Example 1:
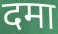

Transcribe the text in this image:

दमा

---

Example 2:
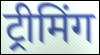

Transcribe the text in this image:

ट्रीमिंग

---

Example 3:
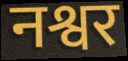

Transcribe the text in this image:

नश्वर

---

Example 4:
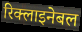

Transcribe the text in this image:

रिक्लाइनेबल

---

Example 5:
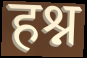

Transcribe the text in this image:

हश्न